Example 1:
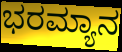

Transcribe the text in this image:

ಭರಮ್ಯಾನ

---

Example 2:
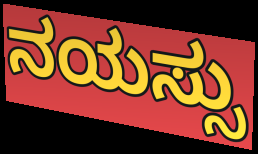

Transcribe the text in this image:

ನಯಸ್ಸು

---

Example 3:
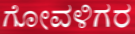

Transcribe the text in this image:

ಗೋವಳಿಗರ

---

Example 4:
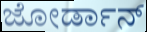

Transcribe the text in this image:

ಜೋರ್ಡಾನ್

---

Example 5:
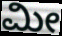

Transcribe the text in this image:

ಮೀ